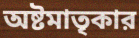
অষ্টমাতৃকার